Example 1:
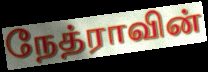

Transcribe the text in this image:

நேத்ராவின்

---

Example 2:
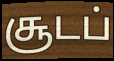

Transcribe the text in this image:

சூடப்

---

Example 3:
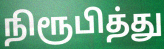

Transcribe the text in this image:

நிரூபித்து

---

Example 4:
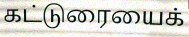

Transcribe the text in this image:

கட்டுரையைக்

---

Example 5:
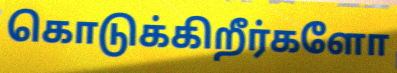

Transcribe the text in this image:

கொடுக்கிறீர்களோ